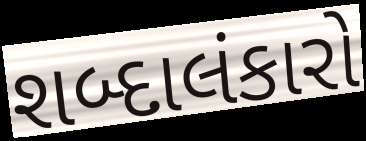
શબ્દાલંકારો